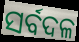
ସର୍ବଦଳ